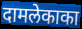
दामलेकाका